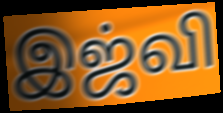
இஜ்வி